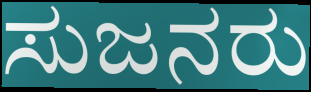
ಸುಜನರು